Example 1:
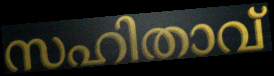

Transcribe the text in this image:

സഹിതാവ്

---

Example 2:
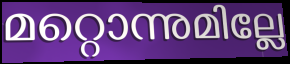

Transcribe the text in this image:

മറ്റൊന്നുമില്ലേ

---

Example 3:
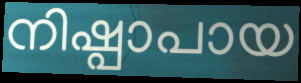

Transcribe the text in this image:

നിഷ്പാപായ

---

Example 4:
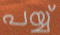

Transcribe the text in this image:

പയ്യ്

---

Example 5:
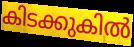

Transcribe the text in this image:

കിടക്കുകിൽ